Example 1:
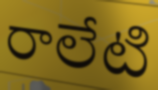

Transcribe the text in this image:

రాలేటి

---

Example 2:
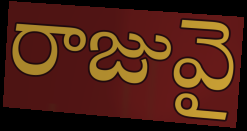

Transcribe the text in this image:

రాజువై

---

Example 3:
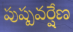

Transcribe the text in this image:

పుష్పవర్షేణ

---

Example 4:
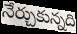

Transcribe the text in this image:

నేర్చుకున్నది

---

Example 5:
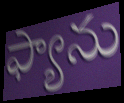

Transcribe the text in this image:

ఫ్యాను